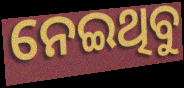
ନେଇଥିବୁ